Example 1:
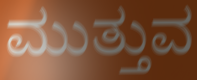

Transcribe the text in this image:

ಮುತ್ತುವ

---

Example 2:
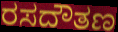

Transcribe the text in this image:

ರಸದೌತಣ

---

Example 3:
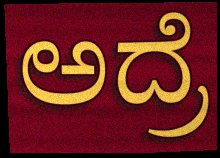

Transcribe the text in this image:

ಅದ್ರೆ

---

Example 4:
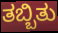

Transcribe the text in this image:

ತಬ್ಬಿತು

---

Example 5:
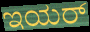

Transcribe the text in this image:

ಇಯರ್